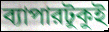
ব্যাপারটুকুই